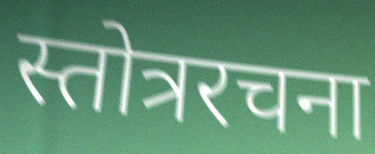
स्तोत्ररचना